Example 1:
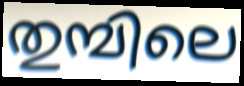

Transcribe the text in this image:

തുമ്പിലെ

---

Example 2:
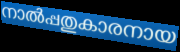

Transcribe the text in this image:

നാൽപ്പതുകാരനായ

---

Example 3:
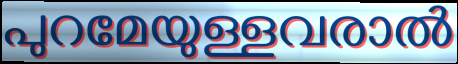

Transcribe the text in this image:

പുറമേയുള്ളവരാൽ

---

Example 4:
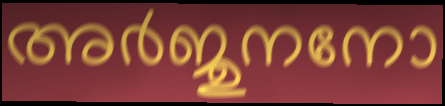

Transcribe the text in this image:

അർജുനനോ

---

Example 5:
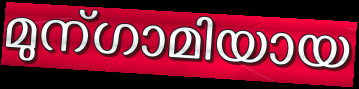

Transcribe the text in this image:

മുന്ഗാമിയായ